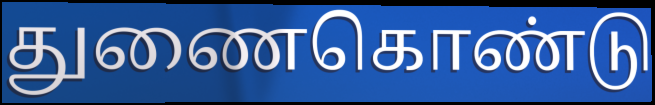
துணைகொண்டு